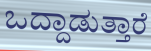
ಒದ್ದಾಡುತ್ತಾರೆ